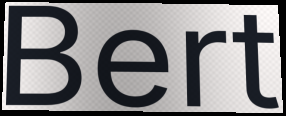
Bert